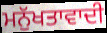
ਮਨੁੱਖਤਾਵਾਦੀ